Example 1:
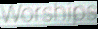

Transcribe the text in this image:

Worships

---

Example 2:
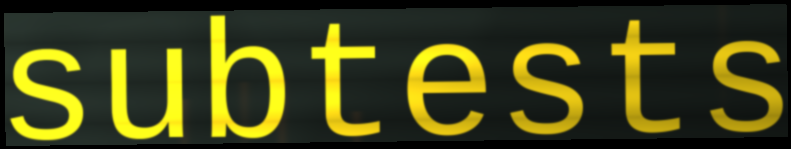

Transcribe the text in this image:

subtests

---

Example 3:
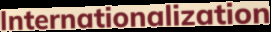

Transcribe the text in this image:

Internationalization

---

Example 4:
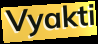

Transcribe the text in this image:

Vyakti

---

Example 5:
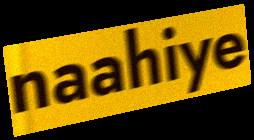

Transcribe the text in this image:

naahiye